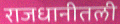
राजधानीतली